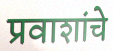
प्रवाशांचे